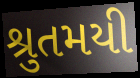
શ્રુતમયી